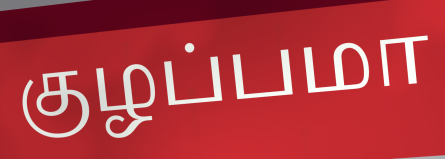
குழப்பமா